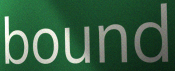
bound